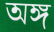
অঙ্গ